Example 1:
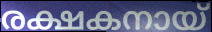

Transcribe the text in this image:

രക്ഷകനായ്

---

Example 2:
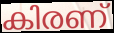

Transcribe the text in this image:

കിരണ്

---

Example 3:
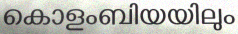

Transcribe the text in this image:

കൊളംബിയയിലും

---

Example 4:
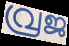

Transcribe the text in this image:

വ്രജ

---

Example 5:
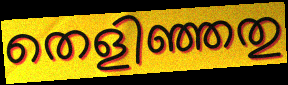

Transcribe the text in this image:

തെളിഞ്ഞതു